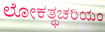
ಲೋಕತ್ಥಚರಿಯಂ